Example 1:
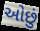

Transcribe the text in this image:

ઓછું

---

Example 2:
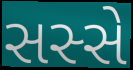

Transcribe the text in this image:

સસ્સે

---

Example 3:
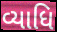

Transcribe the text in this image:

વ્યાધિ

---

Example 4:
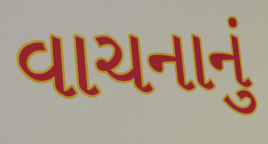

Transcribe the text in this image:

વાચનાનું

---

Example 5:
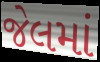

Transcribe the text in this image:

જેલમાં